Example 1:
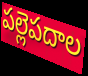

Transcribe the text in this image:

పల్లెపదాల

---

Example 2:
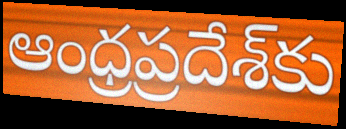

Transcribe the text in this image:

ఆంధ్రప్రదేశ్‌కు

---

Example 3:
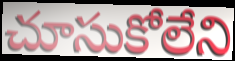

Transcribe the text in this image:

చూసుకోలేని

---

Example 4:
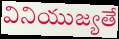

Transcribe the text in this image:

వినియుజ్యతే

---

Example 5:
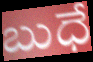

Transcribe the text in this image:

బుధే